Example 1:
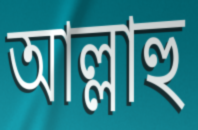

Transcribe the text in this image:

আল্লাহু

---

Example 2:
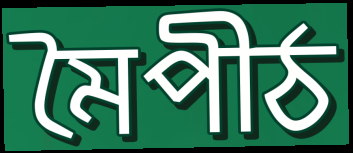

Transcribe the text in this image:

মৈপীঠ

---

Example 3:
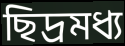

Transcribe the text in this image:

ছিদ্রমধ্য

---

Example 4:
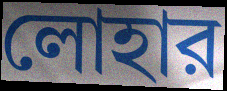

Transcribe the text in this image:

লোহার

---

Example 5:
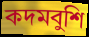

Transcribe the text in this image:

কদমবুশি